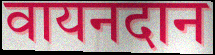
वायनदान